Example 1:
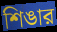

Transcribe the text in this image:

শিঙার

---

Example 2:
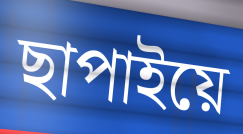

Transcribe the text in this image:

ছাপাইয়ে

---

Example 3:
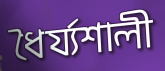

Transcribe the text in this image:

ধৈর্য্যশালী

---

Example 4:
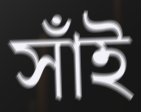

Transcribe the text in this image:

সাঁই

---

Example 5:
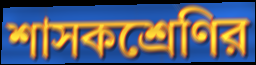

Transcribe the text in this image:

শাসকশ্রেণির